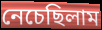
নেচেছিলাম